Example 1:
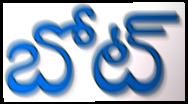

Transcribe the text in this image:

బోట్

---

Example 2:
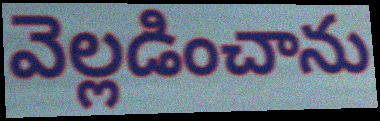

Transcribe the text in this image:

వెల్లడించాను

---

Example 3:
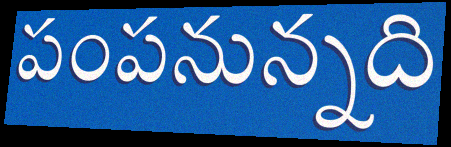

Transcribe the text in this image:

పంపనున్నది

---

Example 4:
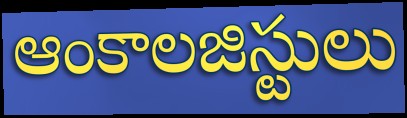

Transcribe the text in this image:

ఆంకాలజిస్టులు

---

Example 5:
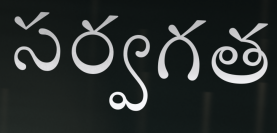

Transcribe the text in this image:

సర్వగత